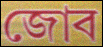
জোব